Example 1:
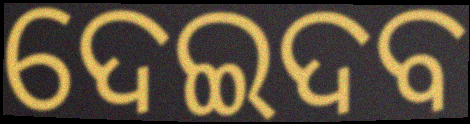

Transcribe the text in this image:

ଦେଇଦବ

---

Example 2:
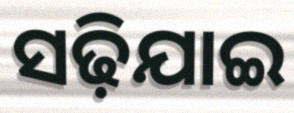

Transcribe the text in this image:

ସଢ଼ିଯାଇ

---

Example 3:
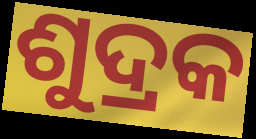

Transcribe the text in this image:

ଶୁଦ୍ରକ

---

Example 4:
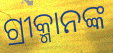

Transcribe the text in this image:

ଗ୍ରୀକ୍ମାନଙ୍କ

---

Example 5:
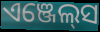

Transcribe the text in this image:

ଏଞ୍ଜେଲ୍‍ସ